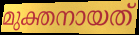
മുക്തനായത്